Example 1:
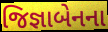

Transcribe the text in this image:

જિજ્ઞાબેનના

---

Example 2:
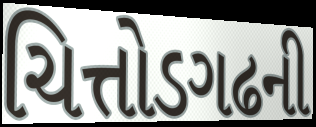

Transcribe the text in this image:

ચિત્તોડગઢની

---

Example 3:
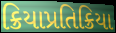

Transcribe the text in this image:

ક્રિયાપ્રતિક્રિયા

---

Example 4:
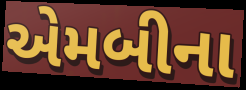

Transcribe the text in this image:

એમબીના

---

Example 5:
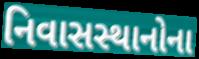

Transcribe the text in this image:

નિવાસસ્થાનોના